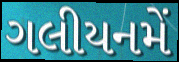
ગલીયનમેં